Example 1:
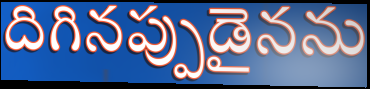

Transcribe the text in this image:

దిగినప్పుడైనను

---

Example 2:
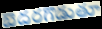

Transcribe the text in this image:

బెదరగొడుతూ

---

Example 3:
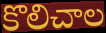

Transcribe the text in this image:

కొలిచాల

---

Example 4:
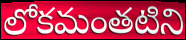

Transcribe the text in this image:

లోకమంతటిని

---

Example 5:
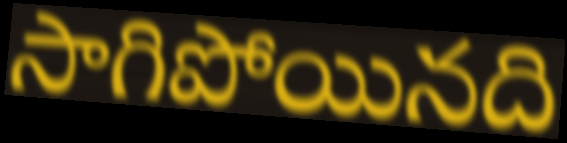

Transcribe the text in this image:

సాగిపోయినది